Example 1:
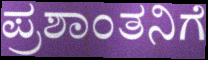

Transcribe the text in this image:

ಪ್ರಶಾಂತನಿಗೆ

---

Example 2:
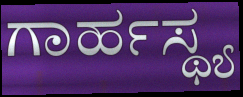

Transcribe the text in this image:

ಗಾರ್ಹಸ್ಥ್ಯ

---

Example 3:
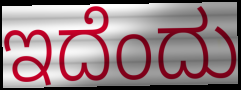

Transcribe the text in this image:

ಇದೆಂದು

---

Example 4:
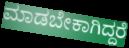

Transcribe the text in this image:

ಮಾಡಬೇಕಾಗಿದ್ದರೆ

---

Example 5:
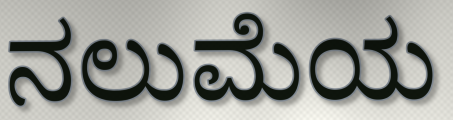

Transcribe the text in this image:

ನಲುಮೆಯ